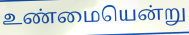
உண்மையென்று